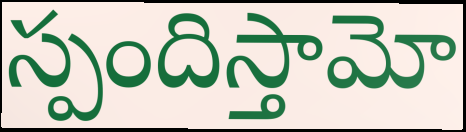
స్పందిస్తామో